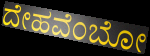
ದೇಹವೆಂಬೋ